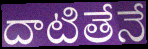
దాటితేనే